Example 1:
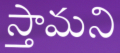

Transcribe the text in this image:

స్తామని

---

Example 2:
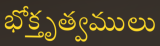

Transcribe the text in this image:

భోక్తృత్వములు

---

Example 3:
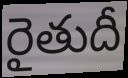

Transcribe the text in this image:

రైతుదీ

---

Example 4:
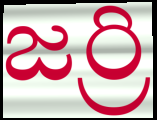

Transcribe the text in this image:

జర్రి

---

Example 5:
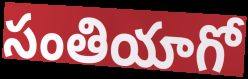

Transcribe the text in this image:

సంతియాగో